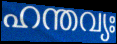
ഹന്തവ്യഃ